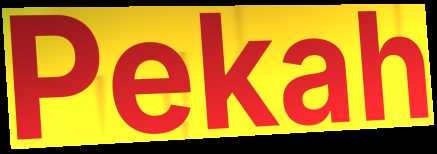
Pekah